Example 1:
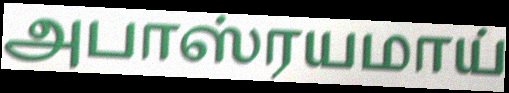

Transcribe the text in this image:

அபாஸ்ரயமாய்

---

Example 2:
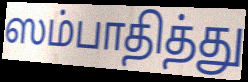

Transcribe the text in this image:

ஸம்பாதித்து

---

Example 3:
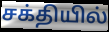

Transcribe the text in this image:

சக்தியில்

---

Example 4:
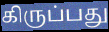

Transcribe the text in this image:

கிருப்பது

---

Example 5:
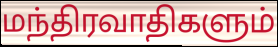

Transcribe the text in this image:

மந்திரவாதிகளும்